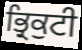
ਭ੍ਰਿਕੁਟੀ